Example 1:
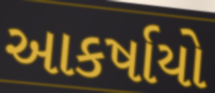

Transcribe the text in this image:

આકર્ષાયો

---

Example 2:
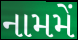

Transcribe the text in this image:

નામમેં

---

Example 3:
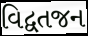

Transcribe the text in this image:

વિદ્વતજન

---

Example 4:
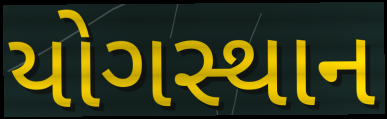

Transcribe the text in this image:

યોગસ્થાન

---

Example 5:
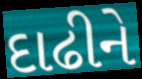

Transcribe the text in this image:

દાઢીને